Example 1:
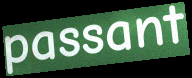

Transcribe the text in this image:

passant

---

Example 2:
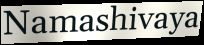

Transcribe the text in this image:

Namashivaya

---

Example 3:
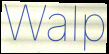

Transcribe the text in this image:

Walp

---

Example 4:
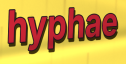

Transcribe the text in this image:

hyphae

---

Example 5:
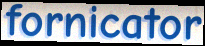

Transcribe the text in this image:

fornicator